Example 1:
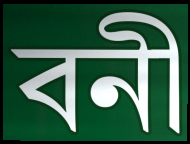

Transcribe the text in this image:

বনী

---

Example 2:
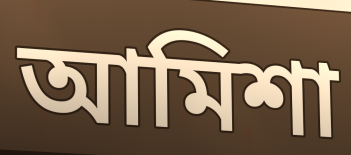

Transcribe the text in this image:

আমিশা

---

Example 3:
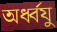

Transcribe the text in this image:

অর্ধ্বযু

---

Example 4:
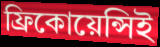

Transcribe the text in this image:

ফ্রিকোয়েন্সিই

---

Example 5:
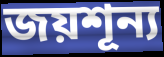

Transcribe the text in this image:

জয়শূন্য